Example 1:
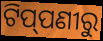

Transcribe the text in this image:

ଟିପ୍‌ପଣୀରୁ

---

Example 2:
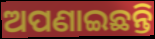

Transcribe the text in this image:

ଅପଣାଇଛନ୍ତି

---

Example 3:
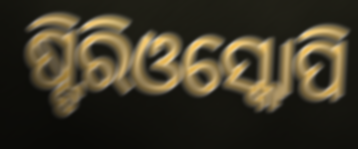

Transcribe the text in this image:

ଷ୍ଟିରିଓସ୍କୋପି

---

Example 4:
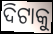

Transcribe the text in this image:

ଦିଟାକୁ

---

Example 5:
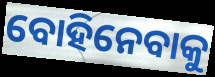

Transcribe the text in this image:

ବୋହିନେବାକୁ